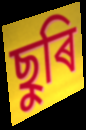
ছুৰি